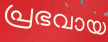
പ്രഭവായ